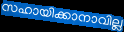
സഹായിക്കാനാവില്ല